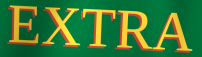
EXTRA